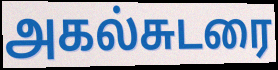
அகல்சுடரை